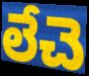
లేచె